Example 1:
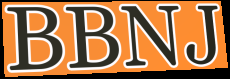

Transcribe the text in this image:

BBNJ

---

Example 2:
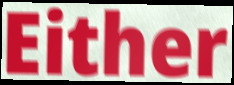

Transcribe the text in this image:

Either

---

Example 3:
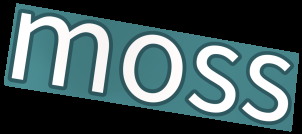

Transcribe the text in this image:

moss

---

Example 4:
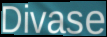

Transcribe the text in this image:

Divase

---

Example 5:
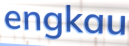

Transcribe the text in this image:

engkau